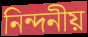
নিন্দনীয়